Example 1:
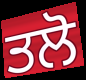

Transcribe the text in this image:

ਤਲੋ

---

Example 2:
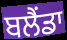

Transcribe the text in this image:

ਬਲੈਂਡਾ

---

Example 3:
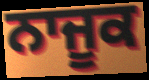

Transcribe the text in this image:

ਨਾਜੂਕ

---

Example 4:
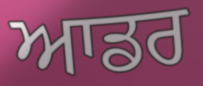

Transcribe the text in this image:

ਆਡਰ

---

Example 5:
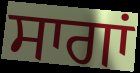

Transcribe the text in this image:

ਸਾਗਾਂ